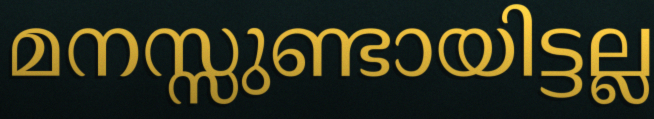
മനസ്സുണ്ടായിട്ടല്ല